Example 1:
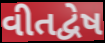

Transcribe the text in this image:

વીતદ્વેષ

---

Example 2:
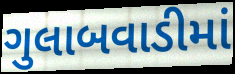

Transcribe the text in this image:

ગુલાબવાડીમાં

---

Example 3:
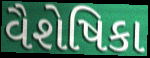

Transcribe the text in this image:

વૈશેષિકા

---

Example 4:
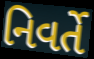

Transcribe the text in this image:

નિવર્તે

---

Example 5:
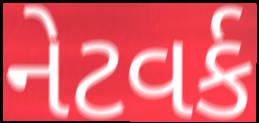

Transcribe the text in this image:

નેટવર્ક